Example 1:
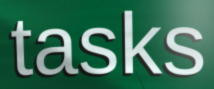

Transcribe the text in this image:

tasks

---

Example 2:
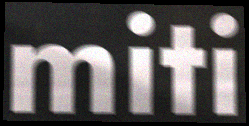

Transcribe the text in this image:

miti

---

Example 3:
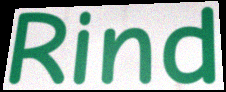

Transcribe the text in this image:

Rind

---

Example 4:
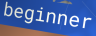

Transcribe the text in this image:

beginner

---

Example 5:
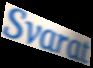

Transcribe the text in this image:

Svarat